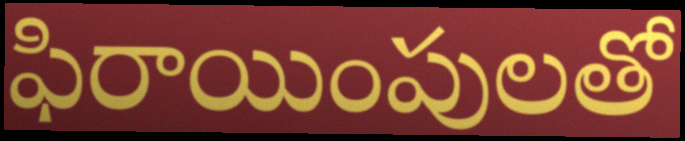
ఫిరాయింపులతో